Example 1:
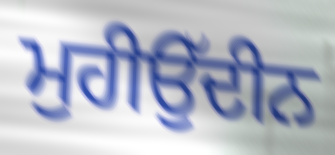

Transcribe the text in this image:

ਮੁਹੀਉੱਦੀਨ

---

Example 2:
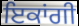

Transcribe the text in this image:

ਇਕਾਂਗੀ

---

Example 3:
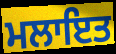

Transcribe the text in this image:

ਮਲਾਇਤ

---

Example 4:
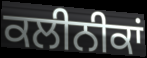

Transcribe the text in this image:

ਕਲੀਨੀਕਾਂ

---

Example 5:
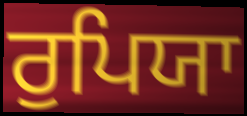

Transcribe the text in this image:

ਰੁਪਿਯਾ